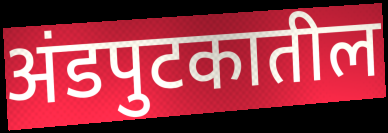
अंडपुटकातील